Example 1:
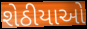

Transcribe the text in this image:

શેઠીયાઓ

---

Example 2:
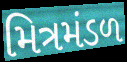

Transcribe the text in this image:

મિત્રમંડળ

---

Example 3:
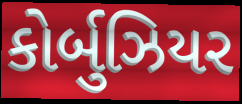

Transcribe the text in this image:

કોર્બુઝિયર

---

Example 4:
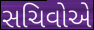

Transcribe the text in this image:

સચિવોએ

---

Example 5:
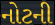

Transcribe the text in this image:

નોટની